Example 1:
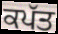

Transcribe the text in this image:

ਕਪੱਤ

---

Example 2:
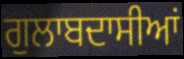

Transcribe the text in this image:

ਗੁਲਾਬਦਾਸੀਆਂ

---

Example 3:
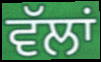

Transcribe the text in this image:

ਵੱਲਾਂ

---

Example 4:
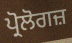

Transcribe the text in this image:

ਪ੍ਰੋਲੋਗਜ਼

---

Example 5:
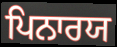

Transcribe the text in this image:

ਪਿਨਾਰਯ